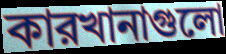
কারখানাগুলো